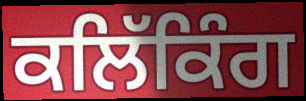
ਕਲਿੱਕਿੰਗ